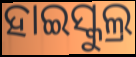
ହାଇସ୍କୁଲ୍ର